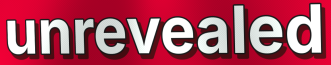
unrevealed